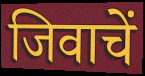
जिवाचें